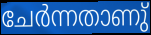
ചേർന്നതാണു്